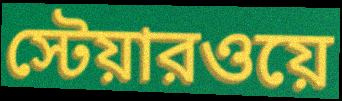
স্টেয়ারওয়ে